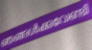
ഞങ്ങൾക്കുവേണ്ടി